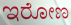
ಇರೋಣ